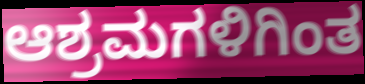
ಆಶ್ರಮಗಳಿಗಿಂತ